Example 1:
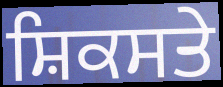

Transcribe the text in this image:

ਸ਼ਿਕਸਤੇ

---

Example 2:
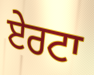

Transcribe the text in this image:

ਏਰਟਾ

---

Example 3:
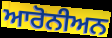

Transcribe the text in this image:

ਆਰੋਨੀਅਨ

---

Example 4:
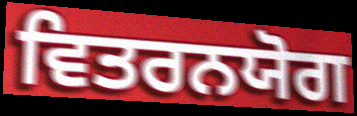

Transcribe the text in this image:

ਵਿਤਰਨਯੋਗ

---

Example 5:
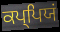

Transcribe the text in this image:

ਕਪ੍ਪਿਯਂ